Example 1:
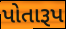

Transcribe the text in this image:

પોતારૂપ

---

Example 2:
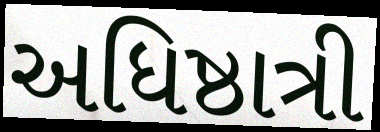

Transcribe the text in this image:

અધિષ્ઠાત્રી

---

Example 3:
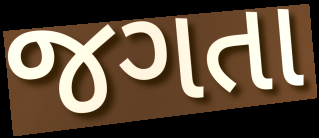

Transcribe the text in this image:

જગતા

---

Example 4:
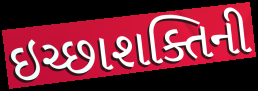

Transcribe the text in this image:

ઇચ્છાશક્તિની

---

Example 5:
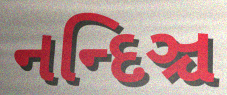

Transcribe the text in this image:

નન્દિઞ્ચ